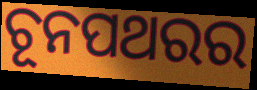
ଚୂନପଥରର